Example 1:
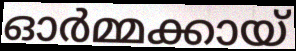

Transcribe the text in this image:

ഓർമ്മക്കായ്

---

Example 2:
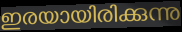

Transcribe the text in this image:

ഇരയായിരിക്കുന്നു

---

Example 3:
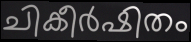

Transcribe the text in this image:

ചികീർഷിതം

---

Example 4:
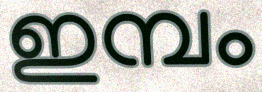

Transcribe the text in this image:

ഇമ്പം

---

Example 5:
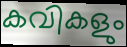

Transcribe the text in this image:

കവികളും